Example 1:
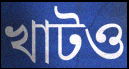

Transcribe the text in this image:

খাটও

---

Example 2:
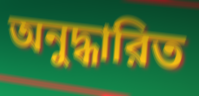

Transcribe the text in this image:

অনুদ্ধারিত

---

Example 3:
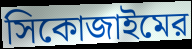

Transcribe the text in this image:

সিকোজাইমের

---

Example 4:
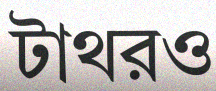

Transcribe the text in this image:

টাথরও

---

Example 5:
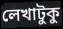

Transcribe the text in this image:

লেখাটুকু